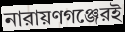
নারায়ণগঞ্জেরই